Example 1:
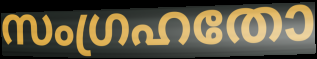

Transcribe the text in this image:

സംഗ്രഹതോ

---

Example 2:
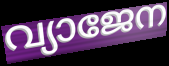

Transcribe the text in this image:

വ്യാജേന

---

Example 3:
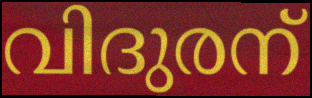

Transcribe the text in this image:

വിദുരന്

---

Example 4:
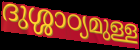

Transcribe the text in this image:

ദുശ്ശാഠ്യമുള്ള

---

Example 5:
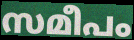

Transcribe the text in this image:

സമീപം